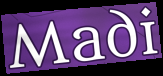
Madi